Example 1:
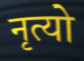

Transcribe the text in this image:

नृत्यो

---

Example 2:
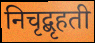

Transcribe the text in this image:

निचृद्बृहती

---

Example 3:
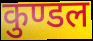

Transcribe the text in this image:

कुण्डल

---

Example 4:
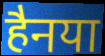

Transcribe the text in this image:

हैनया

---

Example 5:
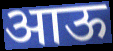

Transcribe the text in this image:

आऊ